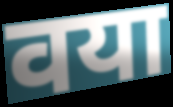
वया